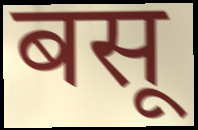
बसू